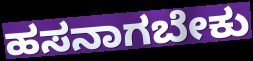
ಹಸನಾಗಬೇಕು